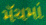
મૅચમાં